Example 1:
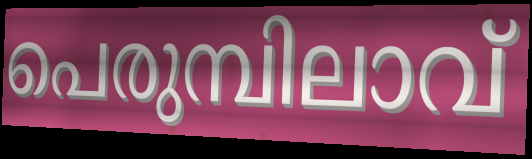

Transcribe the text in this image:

പെരുമ്പിലാവ്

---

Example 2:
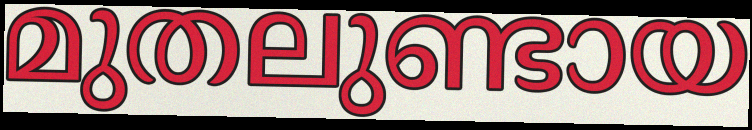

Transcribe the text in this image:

മുതലുണ്ടായ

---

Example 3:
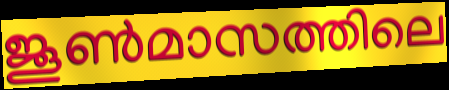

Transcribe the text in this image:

ജൂൺമാസത്തിലെ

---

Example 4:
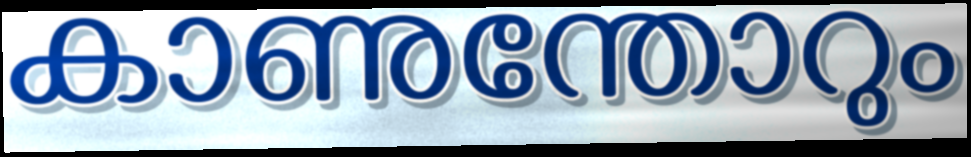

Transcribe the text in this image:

കാണുന്തോറും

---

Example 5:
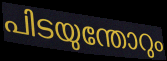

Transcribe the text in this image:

പിടയുന്തോറും